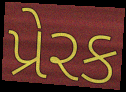
પ્રેરક